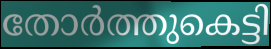
തോർത്തുകെട്ടി